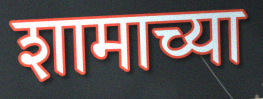
शामाच्या